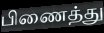
பிணைத்து